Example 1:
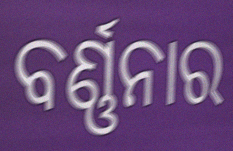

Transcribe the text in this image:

ବର୍ଣ୍ଣନାର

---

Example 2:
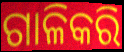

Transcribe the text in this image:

ଗାଳିକରି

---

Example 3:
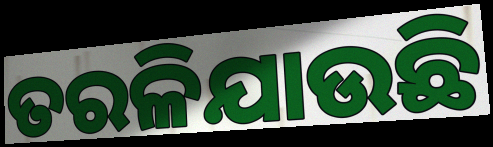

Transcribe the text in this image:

ତରଳିଯାଉଛି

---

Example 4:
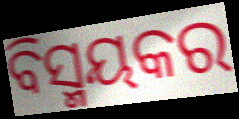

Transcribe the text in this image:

ବିସ୍ମୟକର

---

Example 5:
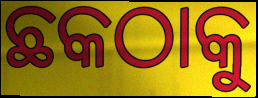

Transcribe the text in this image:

ଛକଠାକୁ